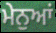
ਮੇਨੁਆਂ